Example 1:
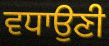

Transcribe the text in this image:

ਵਧਾਉਣੀ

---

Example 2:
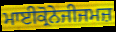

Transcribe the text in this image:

ਮਾਈਕ੍ਰੋਨੇਜੀਜਮਜ਼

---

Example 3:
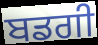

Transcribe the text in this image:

ਬਡਗੀ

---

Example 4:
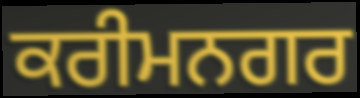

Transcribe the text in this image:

ਕਰੀਮਨਗਰ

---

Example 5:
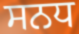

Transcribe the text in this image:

ਸਨਧ